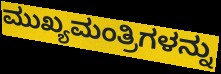
ಮುಖ್ಯಮಂತ್ರಿಗಳನ್ನು